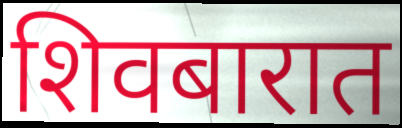
शिवबारात